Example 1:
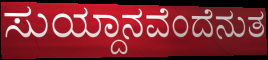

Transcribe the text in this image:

ಸುಯ್ದಾನವೆಂದೆನುತ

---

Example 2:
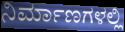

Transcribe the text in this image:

ನಿರ್ಮಾಣಗಳಲ್ಲಿ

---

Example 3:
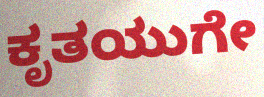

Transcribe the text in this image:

ಕೃತಯುಗೇ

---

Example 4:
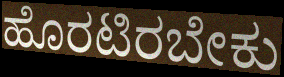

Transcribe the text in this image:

ಹೊರಟಿರಬೇಕು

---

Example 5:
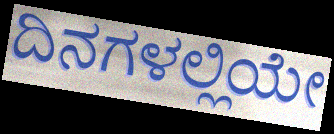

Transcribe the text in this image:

ದಿನಗಳಲ್ಲಿಯೇ